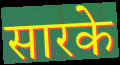
सारके